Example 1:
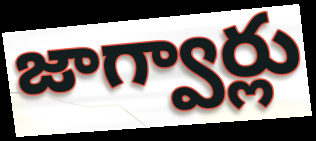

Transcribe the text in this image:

జాగ్వార్లు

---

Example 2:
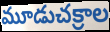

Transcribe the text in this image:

మూడుచక్రాల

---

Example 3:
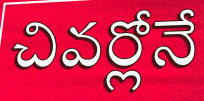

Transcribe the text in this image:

చివర్లోనే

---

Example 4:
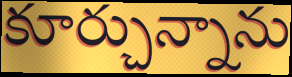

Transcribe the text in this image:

కూర్చున్నాను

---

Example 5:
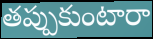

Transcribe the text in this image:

తప్పుకుంటారా